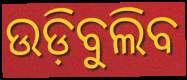
ଉଡ଼ିବୁଲିବ